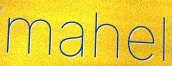
mahel